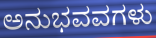
ಅನುಭವವಗಳು